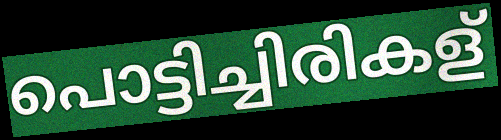
പൊട്ടിച്ചിരികള്